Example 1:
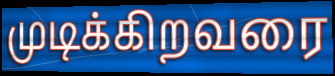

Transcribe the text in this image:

முடிக்கிறவரை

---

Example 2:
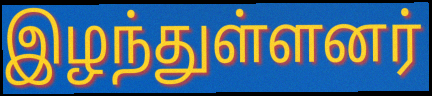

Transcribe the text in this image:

இழந்துள்ளனர்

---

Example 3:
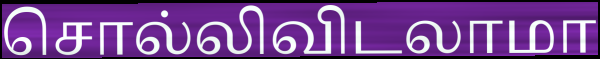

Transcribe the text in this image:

சொல்லிவிடலாமா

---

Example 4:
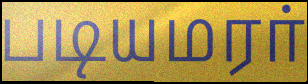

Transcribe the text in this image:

படியமரர்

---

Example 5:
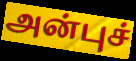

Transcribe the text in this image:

அன்புச்